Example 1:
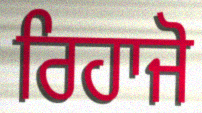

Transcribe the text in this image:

ਰਿਹਾਜੋ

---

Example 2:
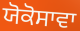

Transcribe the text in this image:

ਯੋਕੋਸਾਵਾ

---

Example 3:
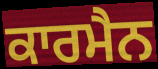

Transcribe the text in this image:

ਕਾਰਮੈਨ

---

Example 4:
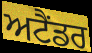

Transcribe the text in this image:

ਅਟੈਂਡਰ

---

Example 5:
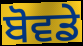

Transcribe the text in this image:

ਬੋਵਡੇ